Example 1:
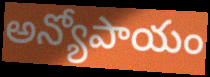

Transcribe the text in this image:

అన్యోపాయం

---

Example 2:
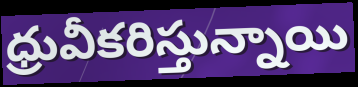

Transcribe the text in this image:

ధ్రువీకరిస్తున్నాయి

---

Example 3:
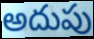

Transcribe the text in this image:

అదుపు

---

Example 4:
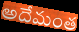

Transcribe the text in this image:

అదేమంత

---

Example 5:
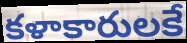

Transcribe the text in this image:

కళాకారులకే